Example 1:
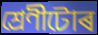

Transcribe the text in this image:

শ্ৰেণীটোৰ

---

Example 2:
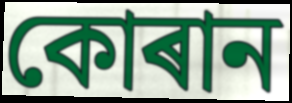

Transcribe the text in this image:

কোৰান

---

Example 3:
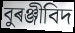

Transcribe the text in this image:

বুৰঞ্জীবিদ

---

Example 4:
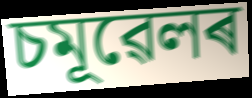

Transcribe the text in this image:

চমূৱেলৰ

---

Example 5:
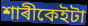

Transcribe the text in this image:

শাৰীকেইটা